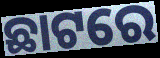
ଛାଟରେ